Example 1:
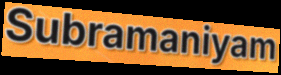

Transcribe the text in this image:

Subramaniyam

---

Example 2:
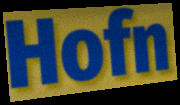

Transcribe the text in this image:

Hofn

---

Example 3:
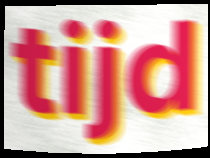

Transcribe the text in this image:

tijd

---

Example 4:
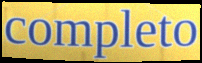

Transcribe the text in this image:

completo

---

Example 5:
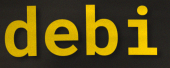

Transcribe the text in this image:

debi